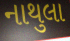
નાથુલા